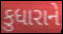
કુધારાને